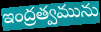
ఇంద్రత్వమును